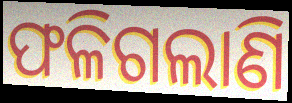
ଫଳିଗଲାଣି